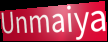
Unmaiya